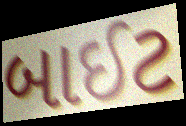
બાઈટ